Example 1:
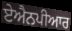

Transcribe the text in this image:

ਏਐਨਪੀਆਰ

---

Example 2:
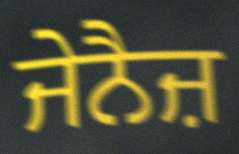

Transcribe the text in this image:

ਜੇਨੈਜ਼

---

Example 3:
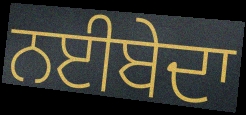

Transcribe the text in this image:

ਨਈਬੇਦਾ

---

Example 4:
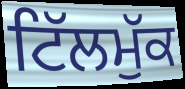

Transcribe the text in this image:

ਟਿੱਲਮੁੱਕ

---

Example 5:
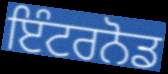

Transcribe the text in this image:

ਇੰਟਰਨੋਡ